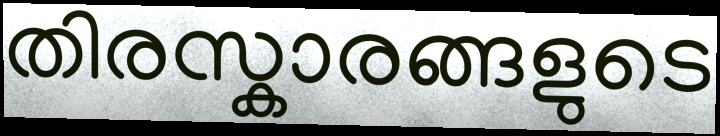
തിരസ്കാരങ്ങളുടെ